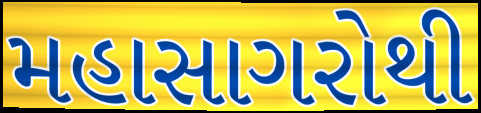
મહાસાગરોથી